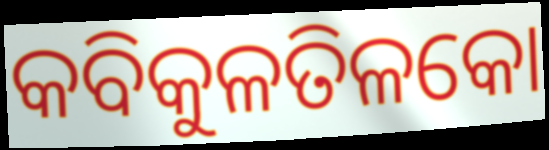
କବିକୁଳତିଳକୋ